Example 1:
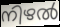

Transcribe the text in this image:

നിഴൽ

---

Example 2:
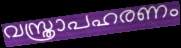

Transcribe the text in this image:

വസ്ത്രാപഹരണം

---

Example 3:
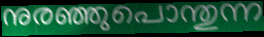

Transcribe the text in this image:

നുരഞ്ഞുപൊന്തുന്ന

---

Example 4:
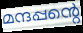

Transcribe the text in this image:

മന്ദപ്പന്റെ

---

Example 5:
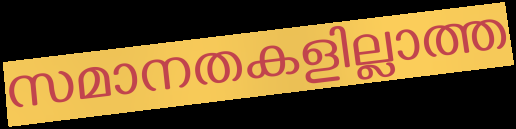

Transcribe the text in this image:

സമാനതകളില്ലാത്ത